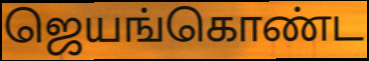
ஜெயங்கொண்ட